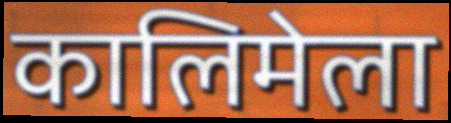
कालिमेला